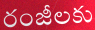
రంజీలకు